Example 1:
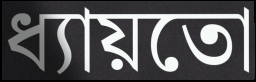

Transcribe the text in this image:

ধ্যায়তো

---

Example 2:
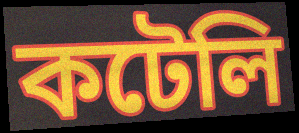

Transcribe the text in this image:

কটেলি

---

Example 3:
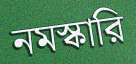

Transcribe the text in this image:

নমস্কারি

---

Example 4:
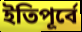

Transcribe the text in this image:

ইতিপূর্বে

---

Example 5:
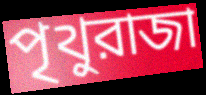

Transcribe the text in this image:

পৃথুরাজা